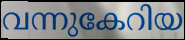
വന്നുകേറിയ